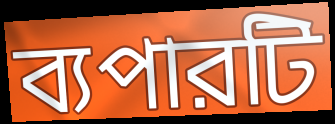
ব্যপারটি